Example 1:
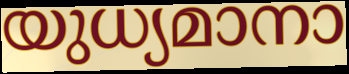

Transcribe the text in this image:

യുധ്യമാനാ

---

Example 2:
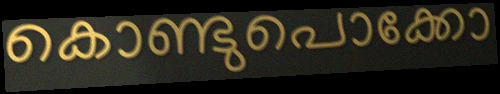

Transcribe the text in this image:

കൊണ്ടുപൊക്കോ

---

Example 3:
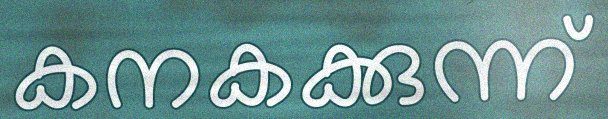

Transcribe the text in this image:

കനകക്കുന്ന്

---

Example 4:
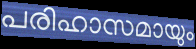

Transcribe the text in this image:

പരിഹാസമായും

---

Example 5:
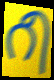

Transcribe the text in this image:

റീ